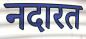
नदारत